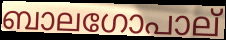
ബാലഗോപാല്